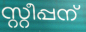
സ്റ്റീപ്പന്